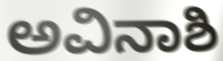
ಅವಿನಾಶಿ